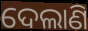
ଦେଲାଣି